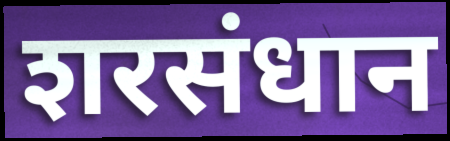
शरसंधान